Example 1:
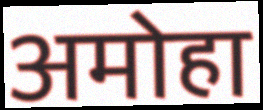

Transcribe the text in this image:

अमोहा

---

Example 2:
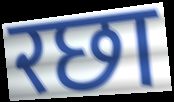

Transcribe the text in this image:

रछा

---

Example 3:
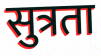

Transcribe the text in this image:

सुत्रता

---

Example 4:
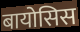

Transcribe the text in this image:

बायोसिस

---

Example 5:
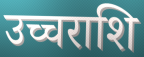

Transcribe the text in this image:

उच्चराशि